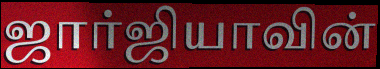
ஜார்ஜியாவின்